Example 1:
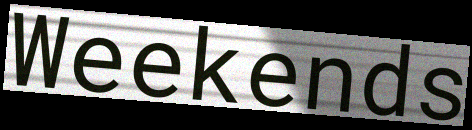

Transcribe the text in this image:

Weekends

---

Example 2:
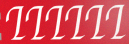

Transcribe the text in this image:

IIIIII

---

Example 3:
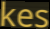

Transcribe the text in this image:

kes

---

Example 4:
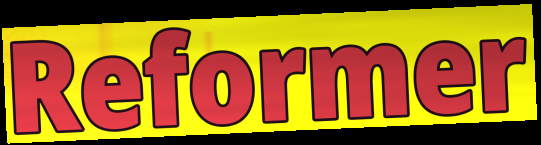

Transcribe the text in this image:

Reformer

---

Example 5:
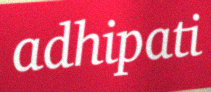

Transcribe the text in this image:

adhipati